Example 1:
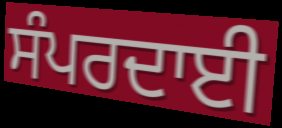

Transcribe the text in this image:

ਸੰਪਰਦਾਈ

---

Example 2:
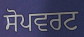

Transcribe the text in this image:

ਸੋਪਵਰਟ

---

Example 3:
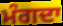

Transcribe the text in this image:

ਮੰਗਦਾ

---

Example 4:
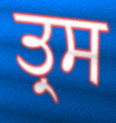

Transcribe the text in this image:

ਤ੍ਰਸ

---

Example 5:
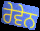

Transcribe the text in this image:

ਰੇਵੇਨ